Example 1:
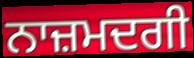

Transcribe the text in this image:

ਨਾਜ਼ਮਦਗੀ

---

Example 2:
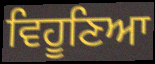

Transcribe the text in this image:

ਵਿਹੂਣਿਆ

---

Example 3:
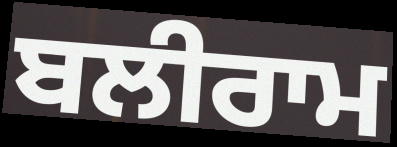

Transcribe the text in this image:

ਬਲੀਰਾਮ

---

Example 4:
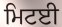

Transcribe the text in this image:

ਮਿਟਈ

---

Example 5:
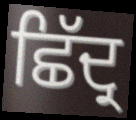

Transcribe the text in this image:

ਛਿੱਦ੍ਰ